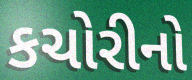
કચોરીનો